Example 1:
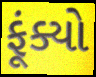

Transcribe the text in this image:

ફૂંક્યો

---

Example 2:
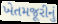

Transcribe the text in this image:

ખેતમજૂરીનું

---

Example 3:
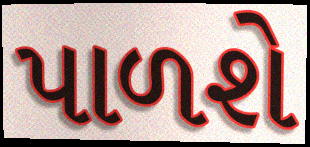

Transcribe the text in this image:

પાળશે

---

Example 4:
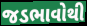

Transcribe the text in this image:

જડભાવોથી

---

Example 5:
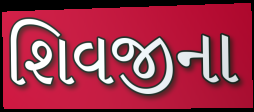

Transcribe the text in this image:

શિવજીના